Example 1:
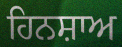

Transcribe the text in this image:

ਹਿਨਸ਼ਾਅ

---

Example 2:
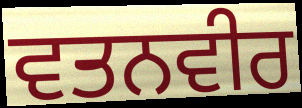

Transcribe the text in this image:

ਵਤਨਵੀਰ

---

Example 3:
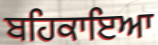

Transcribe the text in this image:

ਬਹਿਕਾਇਆ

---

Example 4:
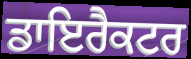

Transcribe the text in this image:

ਡਾਇਰੈਕਟਰ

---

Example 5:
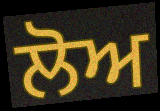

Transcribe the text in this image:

ਲੋਅ